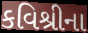
કવિશ્રીના